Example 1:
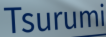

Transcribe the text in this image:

Tsurumi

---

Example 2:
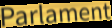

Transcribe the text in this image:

Parlament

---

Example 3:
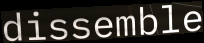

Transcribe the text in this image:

dissemble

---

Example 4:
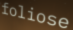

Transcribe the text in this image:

foliose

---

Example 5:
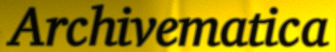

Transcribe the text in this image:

Archivematica